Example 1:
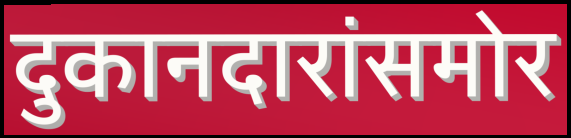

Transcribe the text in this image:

दुकानदारांसमोर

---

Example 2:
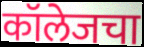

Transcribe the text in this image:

कॉलेजचा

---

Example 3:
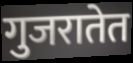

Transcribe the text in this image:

गुजरातेत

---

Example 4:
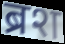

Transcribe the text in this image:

ब्रश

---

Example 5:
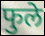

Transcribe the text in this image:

फुले